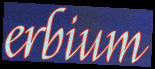
erbium